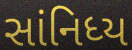
સાંનિધ્ય